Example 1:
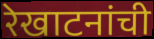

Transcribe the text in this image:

रेखाटनांची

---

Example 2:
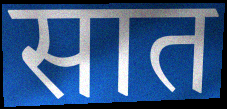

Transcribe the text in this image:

सात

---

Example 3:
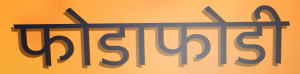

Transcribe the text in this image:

फोडाफोडी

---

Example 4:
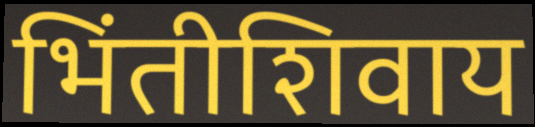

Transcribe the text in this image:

भिंतीशिवाय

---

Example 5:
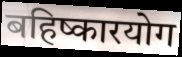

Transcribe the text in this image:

बहिष्कारयोग